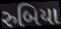
રુબિયા